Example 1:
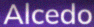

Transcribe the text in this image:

Alcedo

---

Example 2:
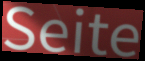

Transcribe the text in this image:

Seite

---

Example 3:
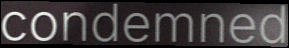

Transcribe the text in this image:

condemned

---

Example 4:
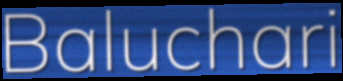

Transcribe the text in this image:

Baluchari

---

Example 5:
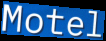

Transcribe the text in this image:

Motel